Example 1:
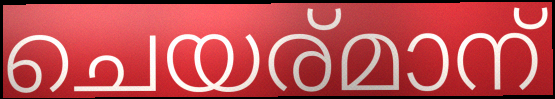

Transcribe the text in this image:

ചെയര്മാന്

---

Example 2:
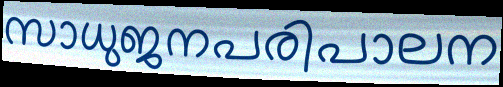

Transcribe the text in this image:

സാധുജനപരിപാലന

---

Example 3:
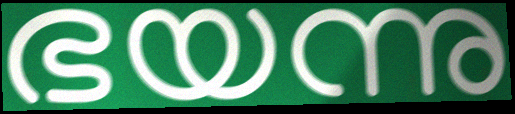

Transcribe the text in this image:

ഭയന്നു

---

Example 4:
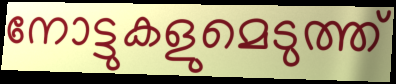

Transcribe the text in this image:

നോട്ടുകളുമെടുത്ത്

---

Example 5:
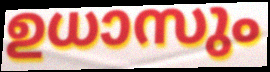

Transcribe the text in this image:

ഉധാസും